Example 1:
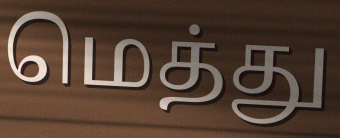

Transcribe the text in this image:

மெத்து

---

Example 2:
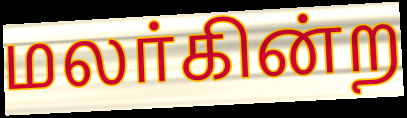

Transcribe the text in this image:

மலர்கின்ற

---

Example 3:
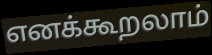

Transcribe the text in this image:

எனக்கூறலாம்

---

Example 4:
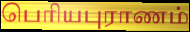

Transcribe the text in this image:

பெரியபுராணம்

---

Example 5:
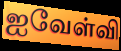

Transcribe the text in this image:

ஐவேள்வி